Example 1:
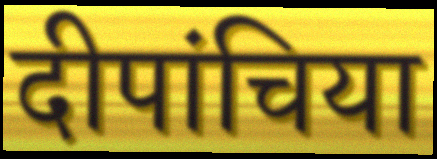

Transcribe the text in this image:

दीपांचिया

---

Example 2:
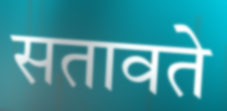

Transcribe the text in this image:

सतावते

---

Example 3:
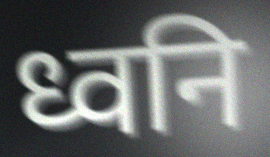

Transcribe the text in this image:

ध्वनि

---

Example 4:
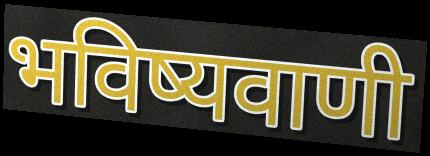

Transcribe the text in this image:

भविष्यवाणी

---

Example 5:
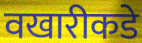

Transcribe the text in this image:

वखारीकडे